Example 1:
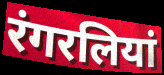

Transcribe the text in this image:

रंगरलियां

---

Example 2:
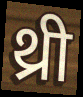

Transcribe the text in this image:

थ्री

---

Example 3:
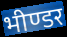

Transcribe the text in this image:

भीण्डर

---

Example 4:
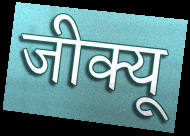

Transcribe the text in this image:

जीक्यू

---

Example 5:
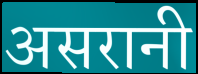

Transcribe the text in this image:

असरानी